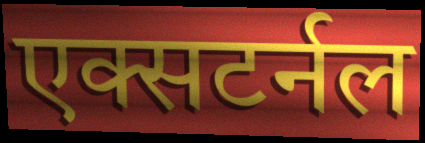
एक्सटर्नल